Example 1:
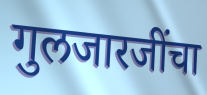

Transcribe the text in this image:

गुलजारजींचा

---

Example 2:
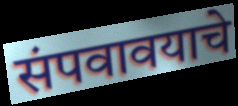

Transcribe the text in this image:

संपवावयाचे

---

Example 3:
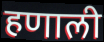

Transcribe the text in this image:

हणाली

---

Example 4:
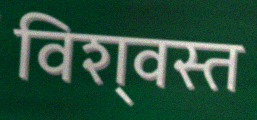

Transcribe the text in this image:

विश्वस्त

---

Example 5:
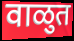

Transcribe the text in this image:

वाळुत